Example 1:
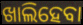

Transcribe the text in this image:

ଖାଲିହେବା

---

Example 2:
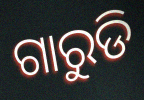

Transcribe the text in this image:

ଗାରୁଡି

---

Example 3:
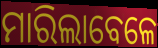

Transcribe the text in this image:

ମାରିଲାବେଳେ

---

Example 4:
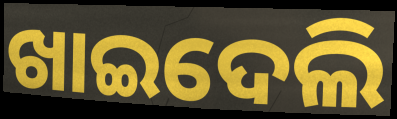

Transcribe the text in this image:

ଖାଇଦେଲି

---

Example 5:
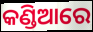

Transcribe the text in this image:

କଣ୍ଡିଆରେ